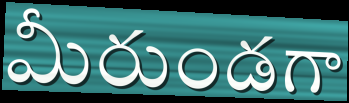
మీరుండగా